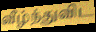
வீழ்ந்துவிட